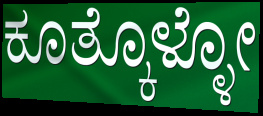
ಕೂತ್ಕೊಳ್ಳೋ